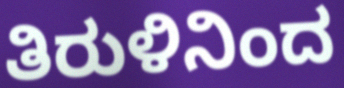
ತಿರುಳಿನಿಂದ